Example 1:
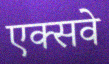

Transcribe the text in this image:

एक्सवे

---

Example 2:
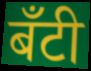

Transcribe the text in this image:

बँटी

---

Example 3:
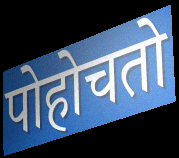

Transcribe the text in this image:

पोहोचतो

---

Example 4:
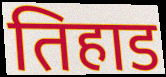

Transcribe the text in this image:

तिहाड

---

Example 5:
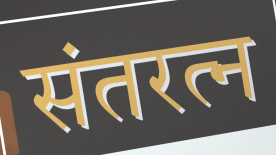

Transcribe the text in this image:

संतरत्न